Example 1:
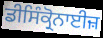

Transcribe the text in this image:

ਡੀਸਿੰਕ੍ਰੋਨਾਈਜ਼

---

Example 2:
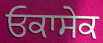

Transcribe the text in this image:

ਓਕਾਸੇਕ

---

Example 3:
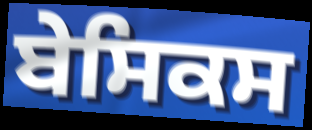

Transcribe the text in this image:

ਬੇਸਿਕਸ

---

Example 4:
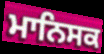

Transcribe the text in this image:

ਮਾਨਿਸਕ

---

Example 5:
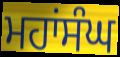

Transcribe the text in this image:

ਮਹਾਂਸੰਘ